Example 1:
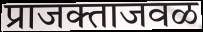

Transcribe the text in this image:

प्राजक्ताजवळ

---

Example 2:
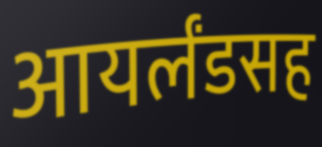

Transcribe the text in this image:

आयर्लंडसह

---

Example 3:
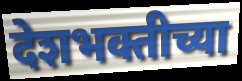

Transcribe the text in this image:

देशभक्तीच्या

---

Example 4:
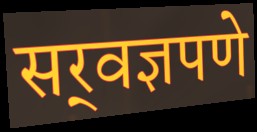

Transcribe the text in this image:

सर्वज्ञपणे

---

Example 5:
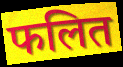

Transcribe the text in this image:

फलित